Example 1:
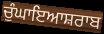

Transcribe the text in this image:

ਚੁੰਘਾਇਆਸ਼ਰਾਬ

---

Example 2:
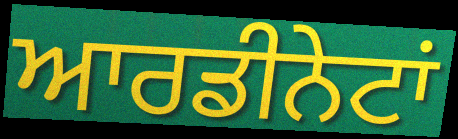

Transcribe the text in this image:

ਆਰਡੀਨੇਟਾਂ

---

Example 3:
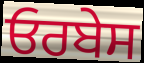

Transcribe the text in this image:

ਓਰਬੇਸ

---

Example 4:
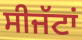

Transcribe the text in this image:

ਸੀਜੱਟਾਂ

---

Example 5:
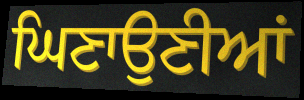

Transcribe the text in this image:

ਘਿਣਾਉਣੀਆਂ